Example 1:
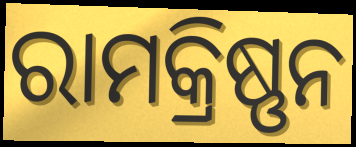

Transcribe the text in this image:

ରାମକ୍ରିଷ୍ଣନ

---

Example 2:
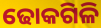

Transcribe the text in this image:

ଢୋକଗିଳି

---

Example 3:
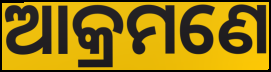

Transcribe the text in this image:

ଆକ୍ରମଣେ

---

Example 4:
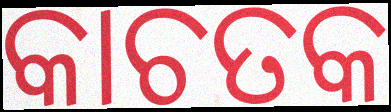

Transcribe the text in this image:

କାଚତକ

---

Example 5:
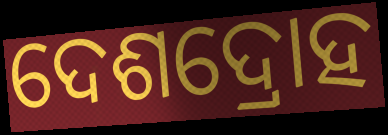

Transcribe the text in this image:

ଦେଶଦ୍ରୋହ